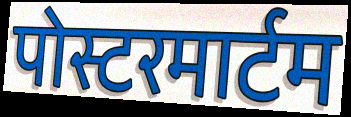
पोस्टरमार्टम